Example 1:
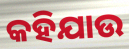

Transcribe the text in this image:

କହିଯାଉ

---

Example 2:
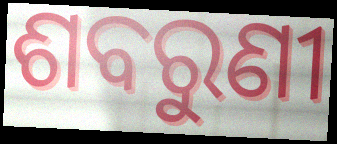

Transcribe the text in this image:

ଶବରୁଣୀ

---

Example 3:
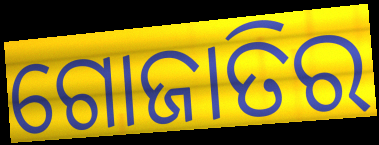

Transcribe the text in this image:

ଗୋଜାତିର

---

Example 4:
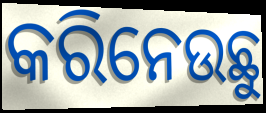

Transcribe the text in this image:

କରିନେଉଛୁ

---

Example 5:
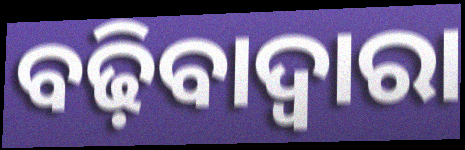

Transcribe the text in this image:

ବଢ଼ିବାଦ୍ୱାରା